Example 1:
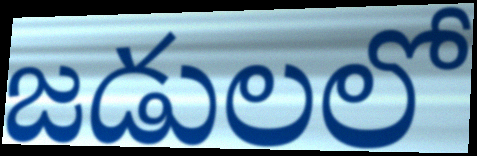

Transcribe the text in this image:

జడులలో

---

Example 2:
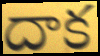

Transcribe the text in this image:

దాక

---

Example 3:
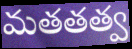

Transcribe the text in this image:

మతతత్వ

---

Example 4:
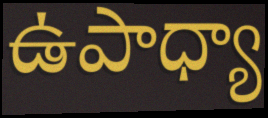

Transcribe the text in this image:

ఉపాధ్యా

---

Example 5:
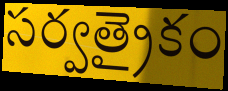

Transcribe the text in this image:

సర్వత్రైకం